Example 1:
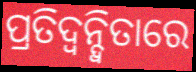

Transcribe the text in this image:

ପ୍ରତିଦ୍ୱନ୍ଦ୍ବିତାରେ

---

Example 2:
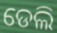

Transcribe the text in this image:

ଡେଲି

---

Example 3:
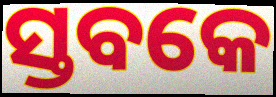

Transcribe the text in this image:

ସ୍ତବକେ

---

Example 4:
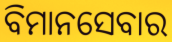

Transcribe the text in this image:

ବିମାନସେବାର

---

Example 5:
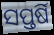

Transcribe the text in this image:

ସପ୍ତର୍ଷି